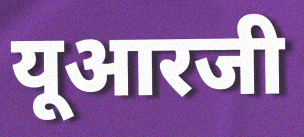
यूआरजी